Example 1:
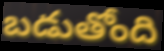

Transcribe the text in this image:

బడుతోంది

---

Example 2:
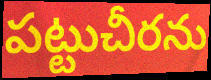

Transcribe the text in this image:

పట్టుచీరను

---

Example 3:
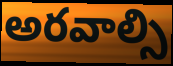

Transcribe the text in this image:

అరవాల్సి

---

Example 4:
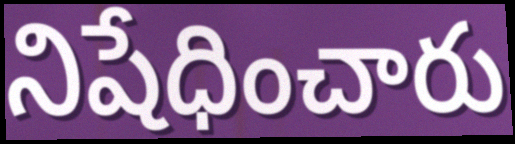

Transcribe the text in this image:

నిషేధించారు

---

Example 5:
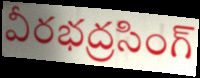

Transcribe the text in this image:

వీరభద్రసింగ్